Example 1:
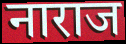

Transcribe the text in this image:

नाराज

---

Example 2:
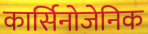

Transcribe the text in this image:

कार्सिनोजेनिक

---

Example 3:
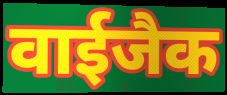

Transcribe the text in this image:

वाईजैक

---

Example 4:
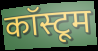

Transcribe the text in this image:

कॉस्टूम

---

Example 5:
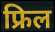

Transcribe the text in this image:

फ्रिल